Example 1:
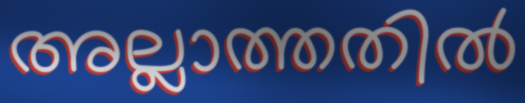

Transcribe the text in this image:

അല്ലാത്തതിൽ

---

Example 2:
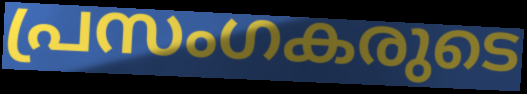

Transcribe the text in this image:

പ്രസംഗകരുടെ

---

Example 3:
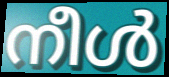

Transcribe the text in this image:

നീൾ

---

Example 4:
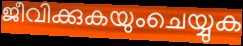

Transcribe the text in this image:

ജീവിക്കുകയുംചെയ്യുക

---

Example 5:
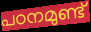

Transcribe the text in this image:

പഠനമുണ്ട്